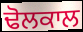
ਢੋਲਕਾਲ